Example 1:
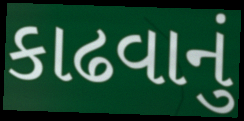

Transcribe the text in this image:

કાઢવાનું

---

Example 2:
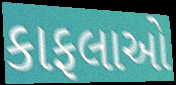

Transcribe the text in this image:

કાફલાઓ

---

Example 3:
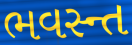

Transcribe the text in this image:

ભવસ્ન્ત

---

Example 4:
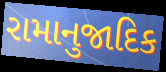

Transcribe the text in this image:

રામાનુજાદિક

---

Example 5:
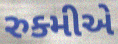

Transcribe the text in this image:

રુક્મીએ